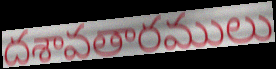
దశావతారములు